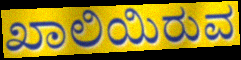
ಖಾಲಿಯಿರುವ